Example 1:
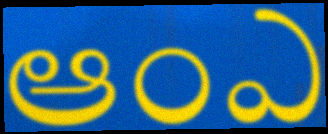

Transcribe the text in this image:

ఆంఎ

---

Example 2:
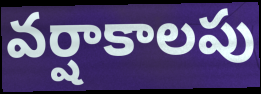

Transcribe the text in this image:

వర్షాకాలపు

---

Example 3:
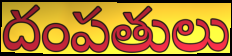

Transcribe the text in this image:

దంపతులు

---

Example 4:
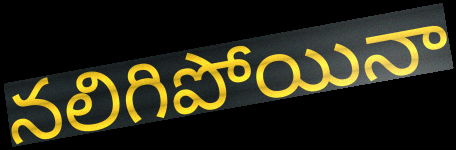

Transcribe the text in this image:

నలిగిపోయినా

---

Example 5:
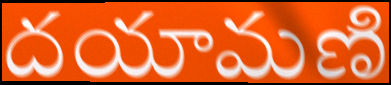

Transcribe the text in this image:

దయామణి